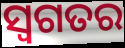
ସ୍ୱଗତର